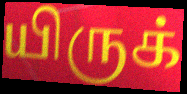
யிருக்